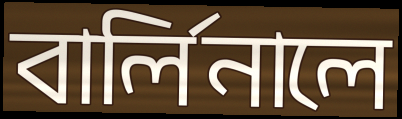
বার্লিনালে